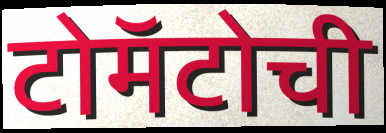
टोमॅटोची